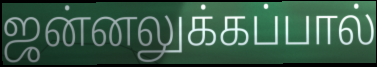
ஜன்னலுக்கப்பால்